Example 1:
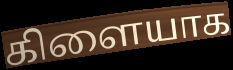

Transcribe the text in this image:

கிளையாக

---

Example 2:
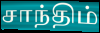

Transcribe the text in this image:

சாந்திம்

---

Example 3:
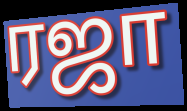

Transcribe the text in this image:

ரஜா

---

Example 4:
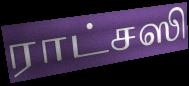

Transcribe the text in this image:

ராட்சஸி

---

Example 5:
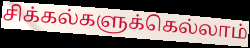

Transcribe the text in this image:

சிக்கல்களுக்கெல்லாம்